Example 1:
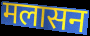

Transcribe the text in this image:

मलासन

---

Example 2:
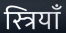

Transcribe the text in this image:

स्त्रियाँ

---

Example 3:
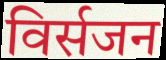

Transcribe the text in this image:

विर्सजन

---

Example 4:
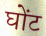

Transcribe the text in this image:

घोंट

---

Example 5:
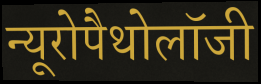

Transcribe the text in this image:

न्यूरोपैथोलॉजी